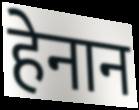
हेनान